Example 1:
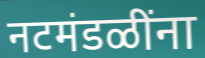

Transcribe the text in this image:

नटमंडळींना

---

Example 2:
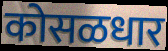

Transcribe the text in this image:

कोसळधार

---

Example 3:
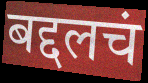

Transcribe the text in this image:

बद्दलचं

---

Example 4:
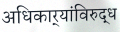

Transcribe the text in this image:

अधिकार्यांविरुद्ध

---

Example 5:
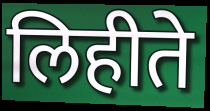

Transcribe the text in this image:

लिहीते